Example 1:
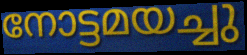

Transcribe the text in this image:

നോട്ടമയച്ചു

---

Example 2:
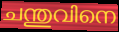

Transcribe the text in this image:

ചന്തുവിനെ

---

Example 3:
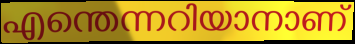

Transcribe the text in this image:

എന്തെന്നറിയാനാണ്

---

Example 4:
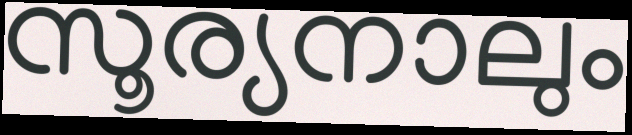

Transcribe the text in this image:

സൂര്യനാലും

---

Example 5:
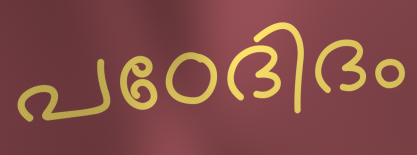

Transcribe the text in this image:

പഠേദിദം